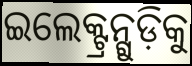
ଇଲେକ୍ଟ୍ରନ୍ଗୁଡ଼ିକୁ